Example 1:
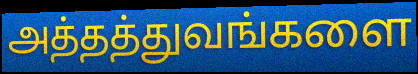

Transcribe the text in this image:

அத்தத்துவங்களை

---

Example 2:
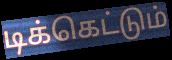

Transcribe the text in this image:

டிக்கெட்டும்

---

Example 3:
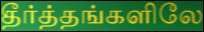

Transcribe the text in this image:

தீர்த்தங்களிலே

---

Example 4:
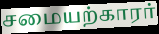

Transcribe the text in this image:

சமையற்காரர்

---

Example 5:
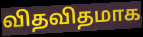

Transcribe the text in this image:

விதவிதமாக